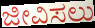
ಜೀವಿಸಲು